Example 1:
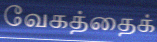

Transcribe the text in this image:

வேகத்தைக்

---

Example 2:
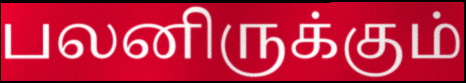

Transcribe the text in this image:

பலனிருக்கும்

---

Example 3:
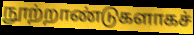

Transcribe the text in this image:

நூற்றாண்டுகளாகச்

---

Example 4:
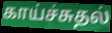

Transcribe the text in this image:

காய்ச்சுதல்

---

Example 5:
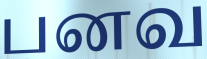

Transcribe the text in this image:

பனவ